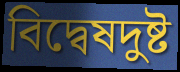
বিদ্বেষদুষ্ট